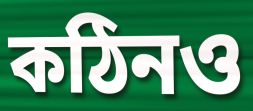
কঠিনও